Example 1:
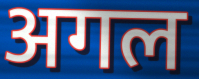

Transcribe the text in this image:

अगल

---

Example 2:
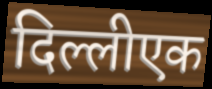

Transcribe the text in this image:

दिल्लीएक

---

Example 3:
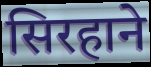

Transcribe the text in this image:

सिरहाने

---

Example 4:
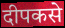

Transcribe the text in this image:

दीपकसे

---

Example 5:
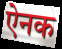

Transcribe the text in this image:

ऐनक